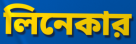
লিনেকার